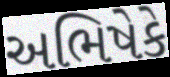
અભિષેકે